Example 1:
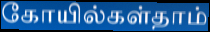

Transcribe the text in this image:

கோயில்கள்தாம்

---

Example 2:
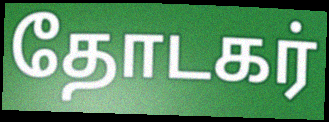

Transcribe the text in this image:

தோடகர்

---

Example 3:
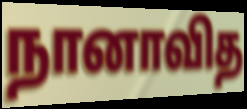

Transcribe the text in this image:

நானாவித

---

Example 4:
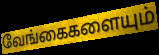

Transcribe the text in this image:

வேங்கைகளையும்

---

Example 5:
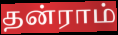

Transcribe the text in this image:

தன்ராம்